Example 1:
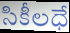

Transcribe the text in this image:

సికీలధే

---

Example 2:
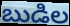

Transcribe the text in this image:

బుడిల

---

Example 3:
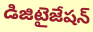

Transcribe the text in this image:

డిజిటైజేషన్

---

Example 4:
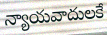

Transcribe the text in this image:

న్యాయవాదులకే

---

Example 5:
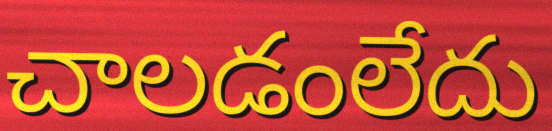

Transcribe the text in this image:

చాలడంలేదు